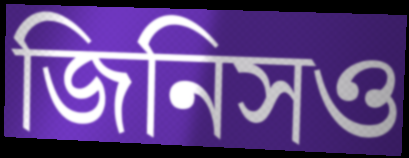
জিনিসও